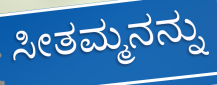
ಸೀತಮ್ಮನನ್ನು